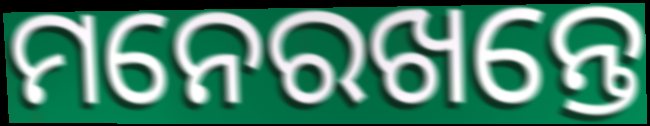
ମନେରଖନ୍ତେ